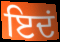
ਇਦਂ